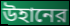
উহানের